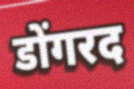
डोंगरद